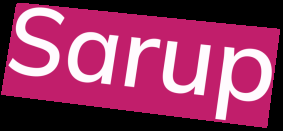
Sarup